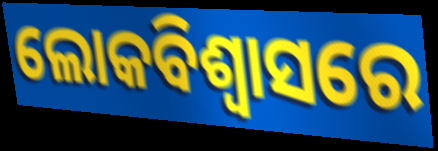
ଲୋକବିଶ୍ୱାସରେ